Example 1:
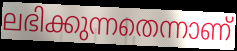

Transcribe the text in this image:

ലഭിക്കുന്നതെന്നാണ്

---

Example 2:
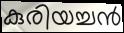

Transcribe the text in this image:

കുരിയച്ചൻ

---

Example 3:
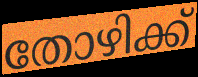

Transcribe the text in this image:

തോഴിക്ക്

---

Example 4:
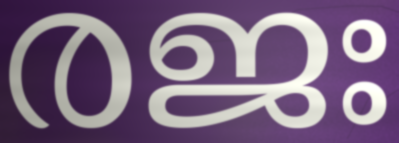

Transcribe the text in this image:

രജഃ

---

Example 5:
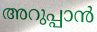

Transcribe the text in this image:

അറുപ്പാൻ